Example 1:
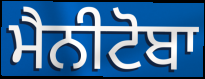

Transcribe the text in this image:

ਮੈਨੀਟੋਬਾ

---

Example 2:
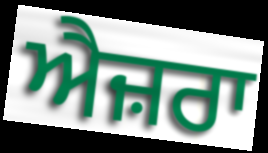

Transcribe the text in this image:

ਐਜ਼ਰਾ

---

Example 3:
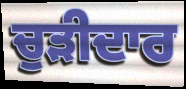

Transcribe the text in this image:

ਚੁੜੀਦਾਰ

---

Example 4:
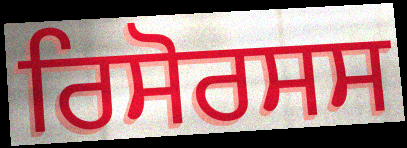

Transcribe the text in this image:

ਰਿਸੋਰਸਸ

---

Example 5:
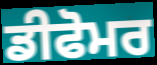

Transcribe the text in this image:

ਡੀਫੋਮਰ